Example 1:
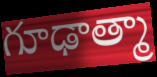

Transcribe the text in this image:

గూఢాత్మా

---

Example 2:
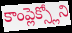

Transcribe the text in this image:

కాంప్లెక్స్లోని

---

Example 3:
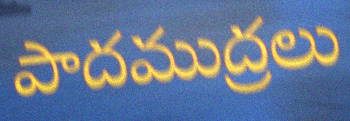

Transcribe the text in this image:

పాదముద్రలు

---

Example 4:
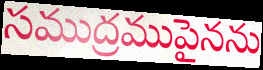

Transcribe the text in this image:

సముద్రముపైనను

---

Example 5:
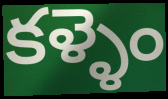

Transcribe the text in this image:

కళ్ళెం